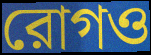
রোগও